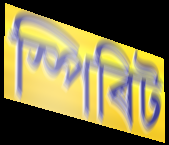
স্পিৰিট